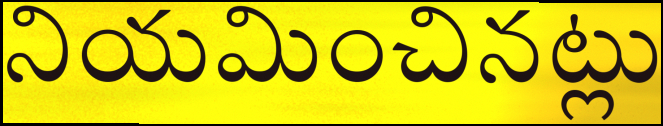
నియమించినట్లు